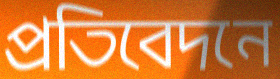
প্ৰতিবেদনে